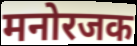
मनोरजक